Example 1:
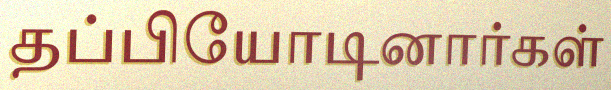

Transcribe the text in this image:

தப்பியோடினார்கள்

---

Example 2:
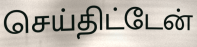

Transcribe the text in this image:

செய்திட்டேன்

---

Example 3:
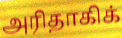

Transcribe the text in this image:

அரிதாகிக்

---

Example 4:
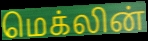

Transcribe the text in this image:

மெக்லின்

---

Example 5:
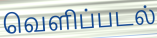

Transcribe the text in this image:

வெளிப்படல்